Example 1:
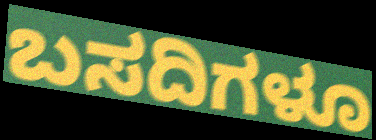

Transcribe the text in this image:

ಬಸದಿಗಳೂ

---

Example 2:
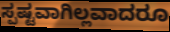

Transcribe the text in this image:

ಸ್ಪಷ್ಟವಾಗಿಲ್ಲವಾದರೂ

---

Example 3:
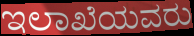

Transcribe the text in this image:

ಇಲಾಖೆಯವರು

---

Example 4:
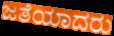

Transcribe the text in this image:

ಜತೆಯಾದರು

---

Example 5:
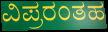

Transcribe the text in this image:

ವಿಪ್ರರಂತಹ